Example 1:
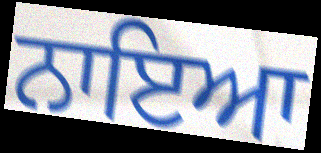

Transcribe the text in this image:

ਨਾਇਆ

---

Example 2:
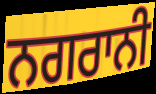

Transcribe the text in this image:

ਨਗਰਾਨੀ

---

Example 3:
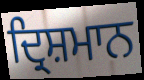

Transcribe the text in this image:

ਦ੍ਰਿਸ਼ਮਾਨ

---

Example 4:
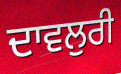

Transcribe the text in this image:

ਦਾਵਲੁਰੀ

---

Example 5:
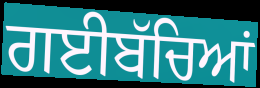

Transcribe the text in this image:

ਗਈਬੱਚਿਆਂ